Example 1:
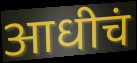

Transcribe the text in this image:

आधीचं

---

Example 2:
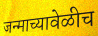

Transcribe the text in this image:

जन्माच्यावेळीच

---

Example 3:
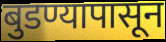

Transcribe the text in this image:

बुडण्यापासून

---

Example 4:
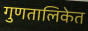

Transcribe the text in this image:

गुणतालिकेत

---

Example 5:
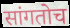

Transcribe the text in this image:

सांगतोच